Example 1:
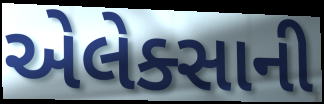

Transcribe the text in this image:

એલેક્સાની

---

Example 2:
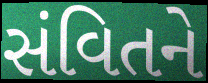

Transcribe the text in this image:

સંવિતને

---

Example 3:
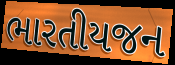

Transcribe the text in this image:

ભારતીયજન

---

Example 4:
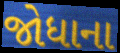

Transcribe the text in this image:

જોધાના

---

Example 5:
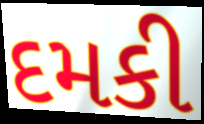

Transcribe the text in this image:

દમકી